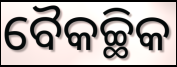
ବୈକଚ୍ଛିକ